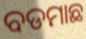
ବଡମାଛ